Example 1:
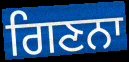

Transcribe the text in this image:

ਗਿਣਨਾ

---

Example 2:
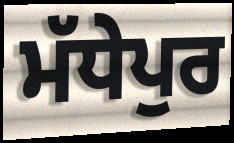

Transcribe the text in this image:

ਮੱਧੇਪੁਰ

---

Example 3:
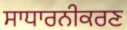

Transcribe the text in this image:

ਸਾਧਾਰਨੀਕਰਣ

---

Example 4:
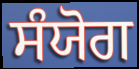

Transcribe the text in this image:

ਸੰਯੋਗ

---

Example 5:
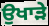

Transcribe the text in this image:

ਉਖਾੜੇ